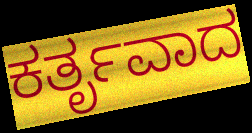
ಕರ್ತೃವಾದ